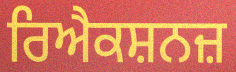
ਰਿਐਕਸ਼ਨਜ਼